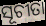
ସୂଚୀତା